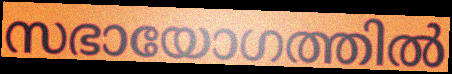
സഭായോഗത്തിൽ